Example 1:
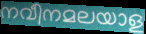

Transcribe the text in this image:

നവീനമലയാള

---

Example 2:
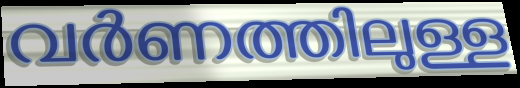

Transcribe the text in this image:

വർണത്തിലുള്ള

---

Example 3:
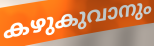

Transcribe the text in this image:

കഴുകുവാനും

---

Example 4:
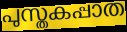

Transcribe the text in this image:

പുസ്തകപ്പാത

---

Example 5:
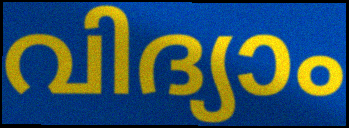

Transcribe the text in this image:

വിദ്യാം